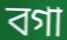
বগা